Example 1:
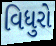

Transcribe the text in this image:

વિધુરો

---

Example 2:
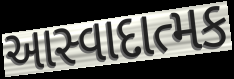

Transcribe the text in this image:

આસ્વાદાત્મક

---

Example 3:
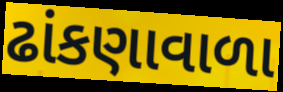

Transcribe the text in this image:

ઢાંકણાવાળા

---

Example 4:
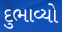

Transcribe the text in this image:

દુભાવ્યો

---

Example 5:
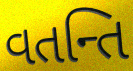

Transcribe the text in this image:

વતન્તિ